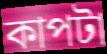
কাপটা